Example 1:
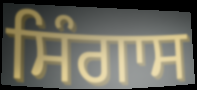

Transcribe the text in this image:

ਸਿੰਗਾਸ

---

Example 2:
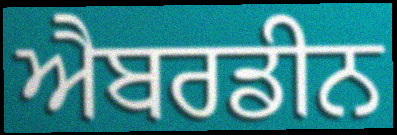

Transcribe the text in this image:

ਐਬਰਡੀਨ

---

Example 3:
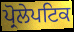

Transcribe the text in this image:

ਪ੍ਰੋਲੇਪਟਿਕ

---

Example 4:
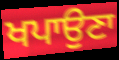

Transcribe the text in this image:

ਖਪਾਉਣਾ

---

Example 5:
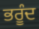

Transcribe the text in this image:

ਭਰੂੰਦ